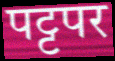
पट्टपर